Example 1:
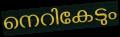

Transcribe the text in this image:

നെറികേടും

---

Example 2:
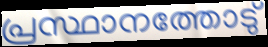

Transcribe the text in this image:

പ്രസ്ഥാനത്തോടു്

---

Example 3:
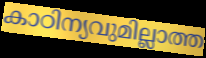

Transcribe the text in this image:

കാഠിന്യവുമില്ലാത്ത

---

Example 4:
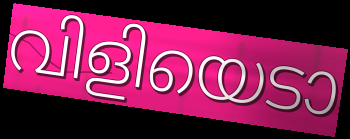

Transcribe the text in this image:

വിളിയെടാ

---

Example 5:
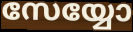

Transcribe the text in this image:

സേയ്യോ